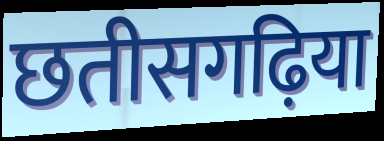
छतीसगढ़िया